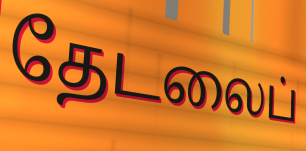
தேடலைப்